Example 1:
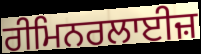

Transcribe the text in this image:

ਰੀਮਿਨਰਲਾਈਜ਼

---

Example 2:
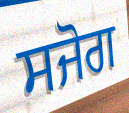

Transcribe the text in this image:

ਸਜੋਗ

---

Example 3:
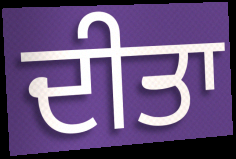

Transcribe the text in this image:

ਦੀਤਾ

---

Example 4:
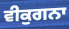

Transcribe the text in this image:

ਵੀਕੁਗਨਾ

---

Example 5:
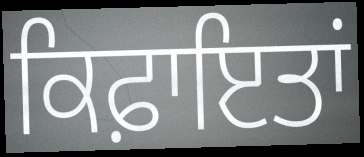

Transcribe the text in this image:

ਕਿਫ਼ਾਇਤਾਂ